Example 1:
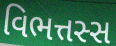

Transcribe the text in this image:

વિભત્તસ્સ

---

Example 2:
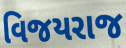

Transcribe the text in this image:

વિજયરાજ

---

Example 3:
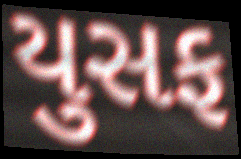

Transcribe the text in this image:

યુસફ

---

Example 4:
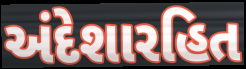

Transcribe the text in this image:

અંદેશારહિત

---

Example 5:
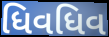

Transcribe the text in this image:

ધિવધિવ